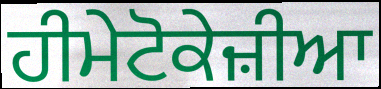
ਹੀਮੇਟੋਕੇਜ਼ੀਆ